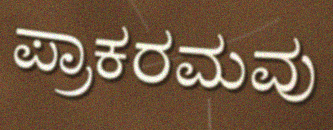
ಪ್ರಾಕರಮವು